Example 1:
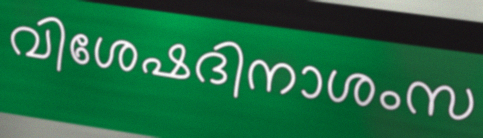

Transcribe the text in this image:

വിശേഷദിനാശംസ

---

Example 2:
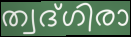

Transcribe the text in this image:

ത്വദ്ഗിരാ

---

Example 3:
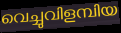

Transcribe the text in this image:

വെച്ചുവിളമ്പിയ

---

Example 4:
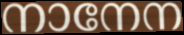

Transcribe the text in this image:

നാനേന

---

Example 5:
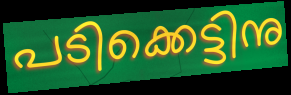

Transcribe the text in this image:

പടിക്കെട്ടിനു